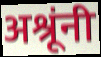
अश्रूंनी